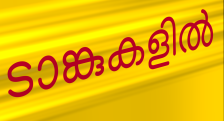
ടാങ്കുകളിൽ